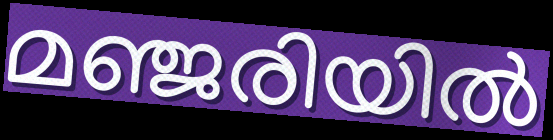
മഞ്ജരിയിൽ